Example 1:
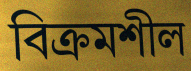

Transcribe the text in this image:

বিক্ৰমশীল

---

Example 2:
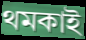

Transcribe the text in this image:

থমকাই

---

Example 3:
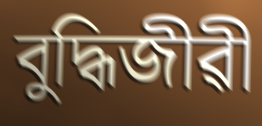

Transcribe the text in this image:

বুদ্ধিজীৱী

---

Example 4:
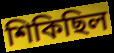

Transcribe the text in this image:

শিকিছিল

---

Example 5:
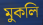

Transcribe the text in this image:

মুকলি